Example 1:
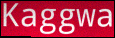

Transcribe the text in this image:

Kaggwa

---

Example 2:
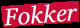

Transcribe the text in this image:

Fokker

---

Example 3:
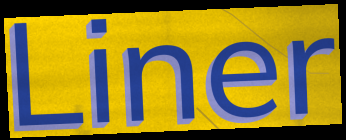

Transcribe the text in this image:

Liner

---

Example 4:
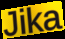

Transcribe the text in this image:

Jika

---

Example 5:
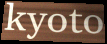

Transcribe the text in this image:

kyoto